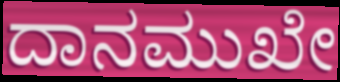
ದಾನಮುಖೇ